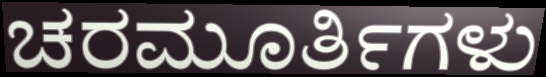
ಚರಮೂರ್ತಿಗಳು